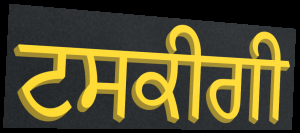
ਟਸਕੀਗੀ